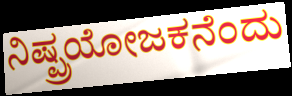
ನಿಷ್ಪ್ರಯೋಜಕನೆಂದು